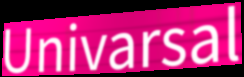
Univarsal